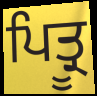
ਪਿਤ੍ਰੂ